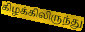
கிழக்கிலிருந்து